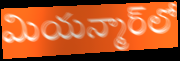
మియన్మార్‌లో